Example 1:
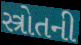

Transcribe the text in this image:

સ્ત્રોતની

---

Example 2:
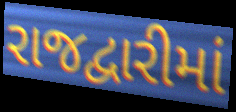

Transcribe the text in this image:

રાજદ્વારીમાં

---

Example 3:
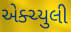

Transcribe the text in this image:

એક્ચ્યુલી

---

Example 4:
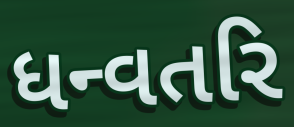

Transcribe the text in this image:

ધન્વતરિ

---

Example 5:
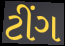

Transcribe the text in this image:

ટીંગ